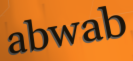
abwab